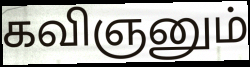
கவிஞனும்